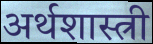
अर्थशास्त्री